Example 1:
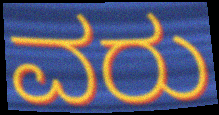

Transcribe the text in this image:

ವರು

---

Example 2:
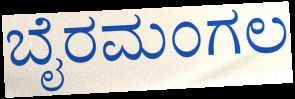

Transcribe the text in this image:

ಬೈರಮಂಗಲ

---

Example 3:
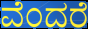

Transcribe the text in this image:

ವೆಂದರೆ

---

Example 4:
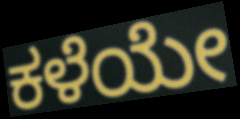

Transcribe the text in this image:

ಕಳೆಯೇ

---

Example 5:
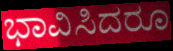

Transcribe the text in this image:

ಭಾವಿಸಿದರೂ